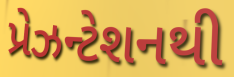
પ્રેઝન્ટેશનથી